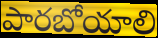
పారబోయాలి